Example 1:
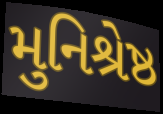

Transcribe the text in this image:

મુનિશ્રેષ્ઠ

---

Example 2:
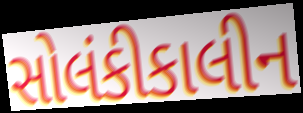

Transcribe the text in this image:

સોલંકીકાલીન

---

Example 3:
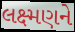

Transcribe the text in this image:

લક્ષ્મણને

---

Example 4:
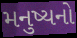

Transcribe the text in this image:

મનુષ્યનો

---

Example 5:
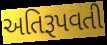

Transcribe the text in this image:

અતિરૂપવતી